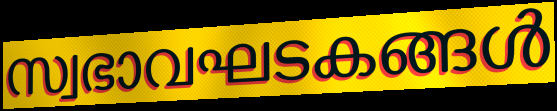
സ്വഭാവഘടകങ്ങൾ